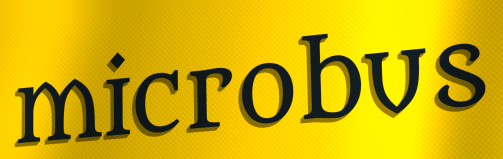
microbus